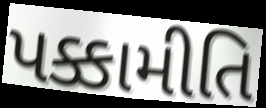
પક્કામીતિ